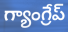
గ్యాంగ్రేప్